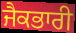
ਜੈਕਭਾਰੀ